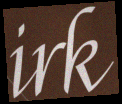
irk